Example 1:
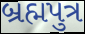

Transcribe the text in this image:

બ્રહ્મપુત્ર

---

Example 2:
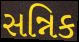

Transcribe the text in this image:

સન્નિક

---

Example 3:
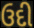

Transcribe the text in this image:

ઉદી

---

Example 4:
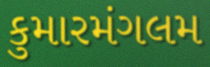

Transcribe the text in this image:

કુમારમંગલમ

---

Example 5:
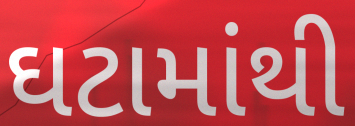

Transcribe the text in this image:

ઘટામાંથી